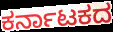
ಕರ್ನಾಟಕದ